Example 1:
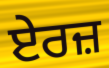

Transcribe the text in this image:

ਏਰਜ਼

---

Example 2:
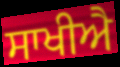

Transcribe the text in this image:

ਸਾਖੀਐ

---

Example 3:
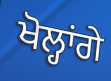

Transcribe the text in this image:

ਖੋਲ੍ਹਾਂਗੇ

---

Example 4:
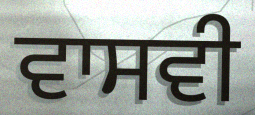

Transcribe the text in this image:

ਵਾਸਵੀ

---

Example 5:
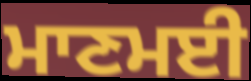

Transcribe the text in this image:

ਮਾਣਮਈ